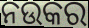
ନଉକର